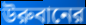
উরুবানের